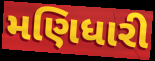
મણિધારી